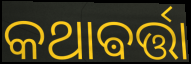
କଥାଵର୍ତ୍ତା